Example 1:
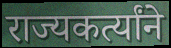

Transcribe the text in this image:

राज्यकर्त्यांने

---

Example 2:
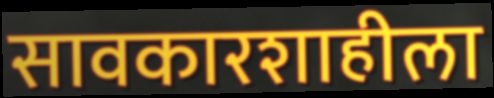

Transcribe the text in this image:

सावकारशाहीला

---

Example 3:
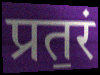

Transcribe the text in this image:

प्रत॒रं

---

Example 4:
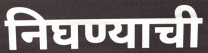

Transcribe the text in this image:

निघण्याची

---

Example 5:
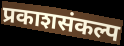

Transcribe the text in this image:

प्रकाशसंकल्प